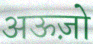
अऊज़ो